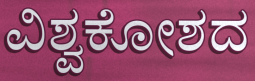
ವಿಶ್ವಕೋಶದ